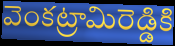
వెంకట్రామిరెడ్డికి